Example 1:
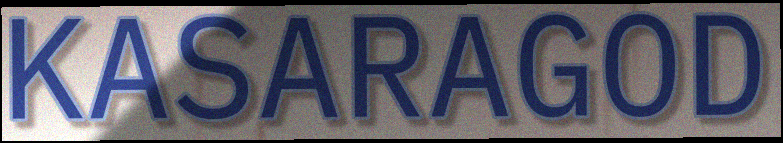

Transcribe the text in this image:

KASARAGOD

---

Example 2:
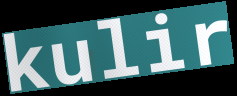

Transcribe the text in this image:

kulir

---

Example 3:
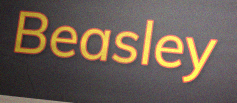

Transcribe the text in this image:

Beasley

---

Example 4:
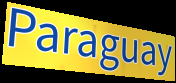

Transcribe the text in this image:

Paraguay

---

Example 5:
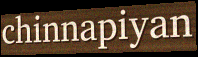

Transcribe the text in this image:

chinnapiyan